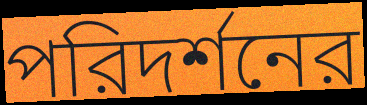
পরিদর্শনের